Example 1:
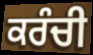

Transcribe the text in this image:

ਕਰੰਚੀ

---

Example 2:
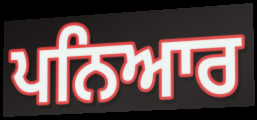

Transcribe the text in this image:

ਪਨਿਆਰ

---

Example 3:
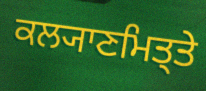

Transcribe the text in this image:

ਕਲ੍ਯਾਣਮਿਤ੍ਤੇ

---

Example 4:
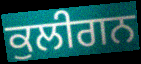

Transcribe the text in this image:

ਕੁਲੀਗਨ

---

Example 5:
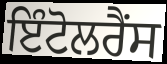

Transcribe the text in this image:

ਇੰਟੋਲਰੈਂਸ